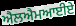
ਐਲਐਮਆਈਏ